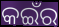
କଇଁର